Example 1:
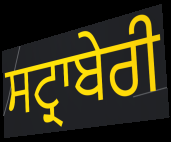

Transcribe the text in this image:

ਸਟ੍ਰਾਬੇਰੀ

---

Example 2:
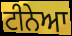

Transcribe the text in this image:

ਟੀਨੇਆ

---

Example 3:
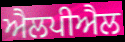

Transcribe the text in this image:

ਐਲਪੀਐਲ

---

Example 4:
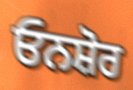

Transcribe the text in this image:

ਓਨਸ਼ੋਰ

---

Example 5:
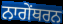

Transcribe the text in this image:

ਨਾਗੇਂਥਰਨ